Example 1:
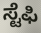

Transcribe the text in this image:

ಸ್ಟೆಫಿ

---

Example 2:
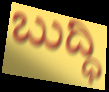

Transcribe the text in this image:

ಬುದ್ಧಿ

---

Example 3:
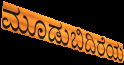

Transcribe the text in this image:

ಮೂಡುಬಿದಿರೆಯ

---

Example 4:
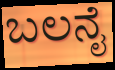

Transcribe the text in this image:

ಬಲನೈ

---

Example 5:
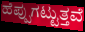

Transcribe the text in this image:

ಹೆಪ್ಪುಗಟ್ಟುತ್ತವೆ